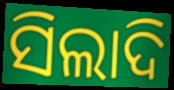
ସିଲାଦି